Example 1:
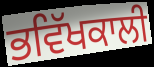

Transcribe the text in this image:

ਭਵਿੱਖਕਾਲੀ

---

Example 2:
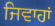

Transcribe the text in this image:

ਜਿਵਾਹਾਂ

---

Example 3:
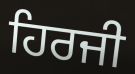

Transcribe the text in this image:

ਹਿਰਜੀ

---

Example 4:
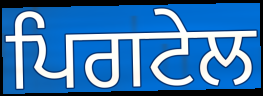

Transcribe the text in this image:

ਪਿਗਟੇਲ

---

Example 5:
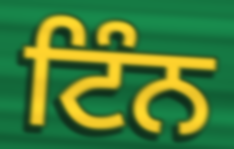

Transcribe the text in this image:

ਟਿੰਨ